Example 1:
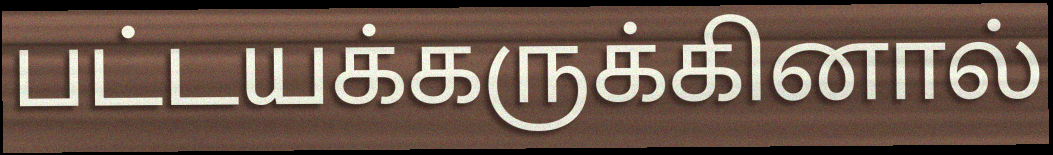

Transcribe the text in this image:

பட்டயக்கருக்கினால்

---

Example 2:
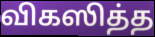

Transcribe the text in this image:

விகஸித்த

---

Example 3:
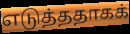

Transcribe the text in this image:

எடுத்ததாகக்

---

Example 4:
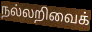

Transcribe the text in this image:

நல்லறிவைக்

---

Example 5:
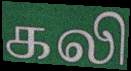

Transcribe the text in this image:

கலி